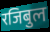
रजिबुल